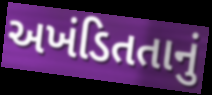
અખંડિતતાનું